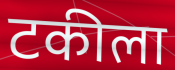
टकीला